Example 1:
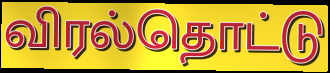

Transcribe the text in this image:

விரல்தொட்டு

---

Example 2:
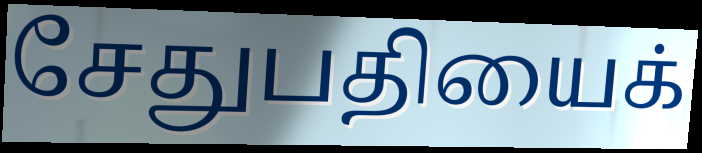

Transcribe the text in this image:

சேதுபதியைக்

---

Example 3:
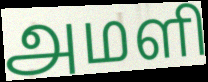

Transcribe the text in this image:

அமளி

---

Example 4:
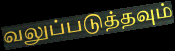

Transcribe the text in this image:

வலுப்படுத்தவும்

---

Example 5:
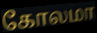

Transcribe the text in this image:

கோலமா